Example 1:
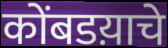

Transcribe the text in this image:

कोंबडय़ाचे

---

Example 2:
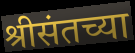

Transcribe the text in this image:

श्रीसंतच्या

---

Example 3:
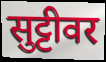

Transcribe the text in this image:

सुट्टीवर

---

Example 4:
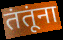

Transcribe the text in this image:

तंतूंना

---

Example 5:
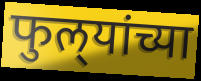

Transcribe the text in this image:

फुल्यांच्या